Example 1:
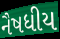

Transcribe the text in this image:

નૈષધીય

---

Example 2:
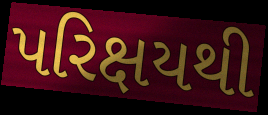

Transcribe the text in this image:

પરિક્ષયથી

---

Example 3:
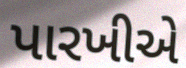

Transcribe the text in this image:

પારખીએ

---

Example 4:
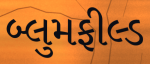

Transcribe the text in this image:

બ્લુમફીલ્ડ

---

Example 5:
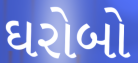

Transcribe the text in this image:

ઘરોબો